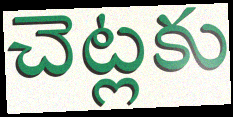
చెట్లకు